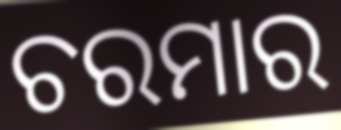
ଚରମାର